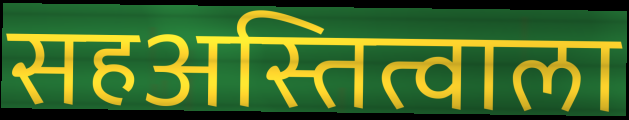
सहअस्तित्वाला